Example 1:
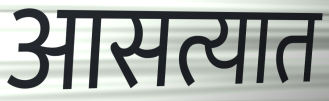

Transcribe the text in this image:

आसत्यात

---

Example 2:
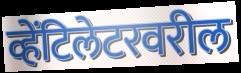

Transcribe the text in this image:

व्हेंटिलेटरवरील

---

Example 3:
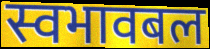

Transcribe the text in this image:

स्वभावबल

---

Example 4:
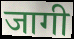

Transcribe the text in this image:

जागी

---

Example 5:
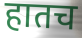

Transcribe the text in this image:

हातच